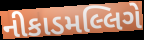
નીકાડમલ્લિગે